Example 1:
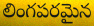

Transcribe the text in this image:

లింగపరమైన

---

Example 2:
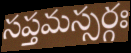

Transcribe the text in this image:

సప్తమస్సర్గః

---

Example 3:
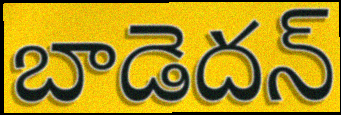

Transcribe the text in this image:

బాడెదన్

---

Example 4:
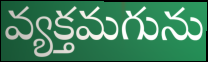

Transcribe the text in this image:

వ్యక్తమగును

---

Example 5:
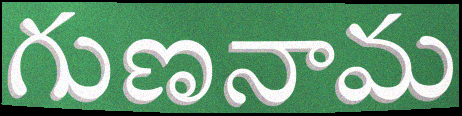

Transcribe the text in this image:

గుణనామ